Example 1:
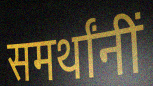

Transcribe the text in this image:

समर्थांनीं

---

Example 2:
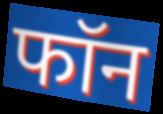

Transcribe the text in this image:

फॉन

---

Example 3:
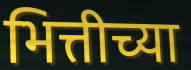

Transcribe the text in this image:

भित्तीच्या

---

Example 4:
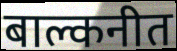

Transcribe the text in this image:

बाल्कनीत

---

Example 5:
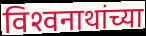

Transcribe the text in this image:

विश्वनाथांच्या